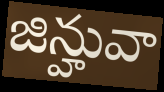
జిన్హువా